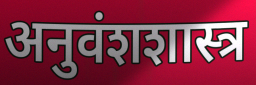
अनुवंशशास्त्र